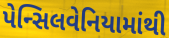
પેન્સિલવેનિયામાંથી